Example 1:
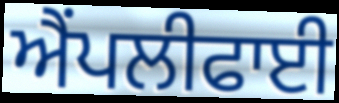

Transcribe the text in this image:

ਐਂਪਲੀਫਾਈ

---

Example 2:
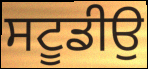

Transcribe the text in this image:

ਸਟੂਡੀਉ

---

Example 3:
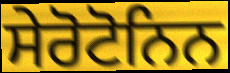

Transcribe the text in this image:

ਸੇਰੋਟੋਨਿਨ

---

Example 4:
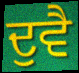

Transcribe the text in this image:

ਦੁਵੈ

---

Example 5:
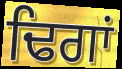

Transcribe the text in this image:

ਢਿਗਾਂ